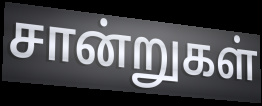
சான்றுகள்